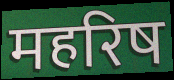
महरिष